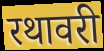
रथावरी